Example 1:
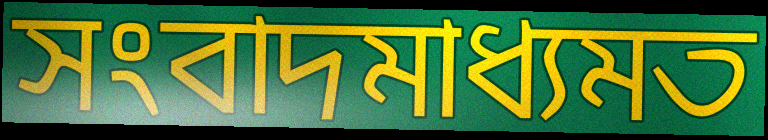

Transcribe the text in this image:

সংবাদমাধ্যমত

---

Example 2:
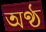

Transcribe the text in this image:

অণ্ঠ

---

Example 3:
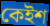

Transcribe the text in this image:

কেইশ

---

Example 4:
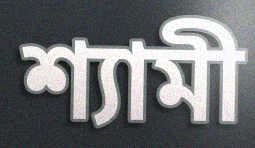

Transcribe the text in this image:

শ্যামী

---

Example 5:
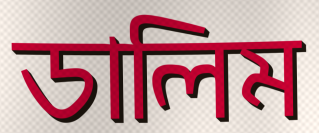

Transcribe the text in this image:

ডালিম